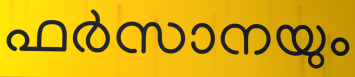
ഫർസാനയും